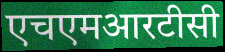
एचएमआरटीसी